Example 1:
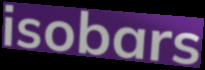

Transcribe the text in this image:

isobars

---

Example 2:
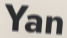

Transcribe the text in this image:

Yan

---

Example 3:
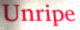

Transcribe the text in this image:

Unripe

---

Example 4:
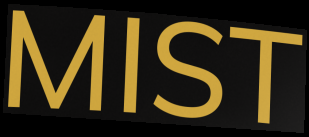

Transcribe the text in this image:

MIST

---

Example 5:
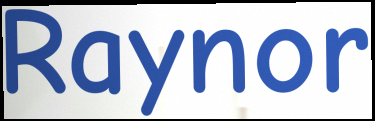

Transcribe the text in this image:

Raynor